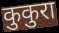
कुकुरा